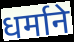
धर्माने